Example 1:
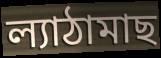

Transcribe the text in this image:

ল্যাঠামাছ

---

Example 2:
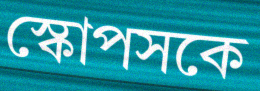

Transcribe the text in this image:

স্কোপসকে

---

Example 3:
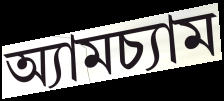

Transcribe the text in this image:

অ্যামচ্যাম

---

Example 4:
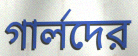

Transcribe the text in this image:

গার্লদের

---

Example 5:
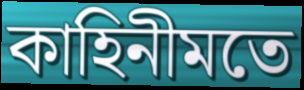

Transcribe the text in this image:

কাহিনীমতে